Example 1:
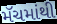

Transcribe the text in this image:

મૅચમાંથી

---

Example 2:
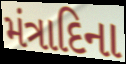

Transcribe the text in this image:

મંત્રાદિના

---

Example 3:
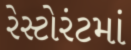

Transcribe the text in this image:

રેસ્ટોરંટમાં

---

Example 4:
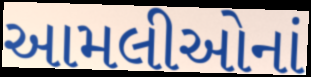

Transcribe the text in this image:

આમલીઓનાં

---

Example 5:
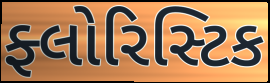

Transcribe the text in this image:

ફ્લોરિસ્ટિક